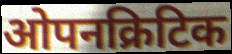
ओपनक्रिटिक